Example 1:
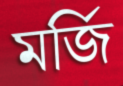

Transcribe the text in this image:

মর্জি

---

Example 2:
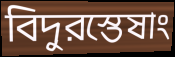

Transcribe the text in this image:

বিদুরস্তেষাং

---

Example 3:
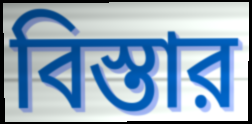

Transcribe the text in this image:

বিস্তার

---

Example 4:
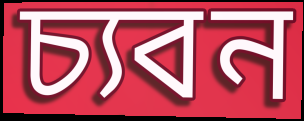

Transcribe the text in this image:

চ্যবন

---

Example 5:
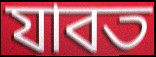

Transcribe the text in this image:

যাবত